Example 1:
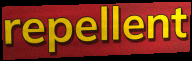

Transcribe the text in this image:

repellent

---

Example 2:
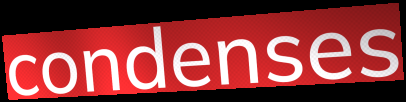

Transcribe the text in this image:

condenses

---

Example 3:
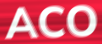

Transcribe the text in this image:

ACO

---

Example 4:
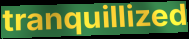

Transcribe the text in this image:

tranquillized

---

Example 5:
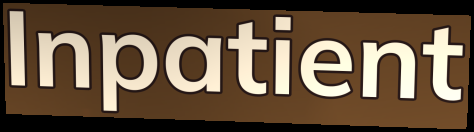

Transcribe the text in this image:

Inpatient